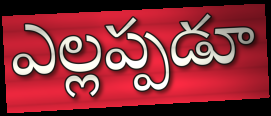
ఎల్లప్పడూ